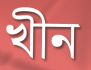
খীন